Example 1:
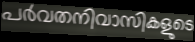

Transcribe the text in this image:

പർവതനിവാസികളുടെ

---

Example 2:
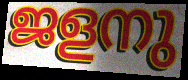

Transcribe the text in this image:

ജളനു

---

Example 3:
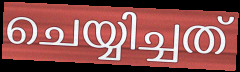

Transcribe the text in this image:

ചെയ്യിച്ചത്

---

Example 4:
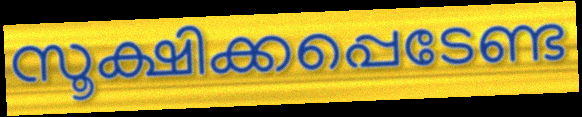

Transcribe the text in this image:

സൂക്ഷിക്കപ്പെടേണ്ട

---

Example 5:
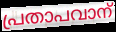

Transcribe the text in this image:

പ്രതാപവാന്